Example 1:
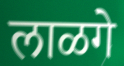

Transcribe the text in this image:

लाळगे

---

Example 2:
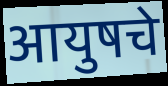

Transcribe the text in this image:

आयुषचे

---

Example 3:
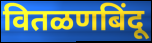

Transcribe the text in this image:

वितळणबिंदू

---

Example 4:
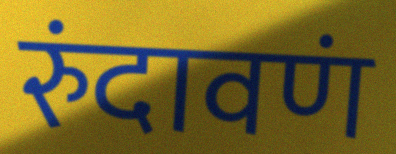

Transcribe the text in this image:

रुंदावणं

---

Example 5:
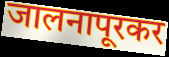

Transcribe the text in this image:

जालनापूरकर